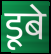
डूबे